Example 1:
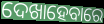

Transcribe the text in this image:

ଦେଖାହେବାରେ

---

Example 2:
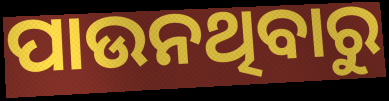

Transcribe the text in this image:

ପାଉନଥିବାରୁ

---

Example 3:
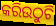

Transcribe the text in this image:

କରିଉଠୁଚି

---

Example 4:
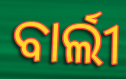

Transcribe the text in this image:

ବାର୍ଲୀ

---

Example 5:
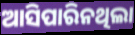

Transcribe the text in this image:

ଆସିପାରିନଥିଲା